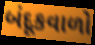
બંદૂકવાળો